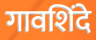
गावशिंदे